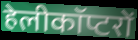
हेलीकॉप्‍टरों